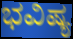
ಭವಿಷ್ಯ